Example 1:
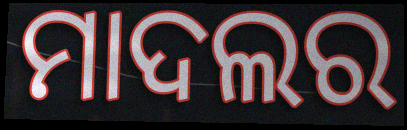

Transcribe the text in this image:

ମାଦଲର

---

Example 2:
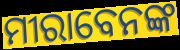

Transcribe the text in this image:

ମୀରାବେନଙ୍କ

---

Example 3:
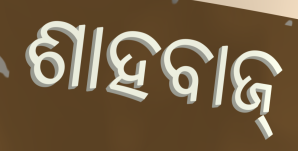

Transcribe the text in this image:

ଶାହବାଜ୍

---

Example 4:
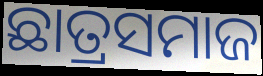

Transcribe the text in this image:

ଛାତ୍ରସମାଜ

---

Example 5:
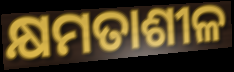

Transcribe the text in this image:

କ୍ଷମତାଶୀଳ